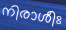
നിരാശീഃ